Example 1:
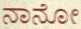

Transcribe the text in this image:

ನಾನೋ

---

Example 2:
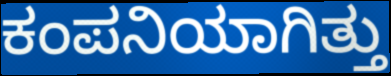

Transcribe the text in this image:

ಕಂಪನಿಯಾಗಿತ್ತು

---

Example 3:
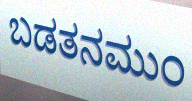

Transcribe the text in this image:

ಬಡತನಮುಂ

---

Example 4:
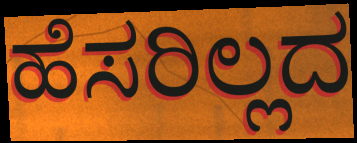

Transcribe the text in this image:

ಹೆಸರಿಲ್ಲದ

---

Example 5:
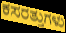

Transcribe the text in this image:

ಕಸರತ್ತುಗಳು